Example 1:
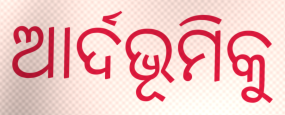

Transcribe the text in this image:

ଆର୍ଦଭୂମିକୁ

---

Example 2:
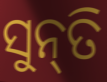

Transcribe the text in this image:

ସୁନ୍‌ତି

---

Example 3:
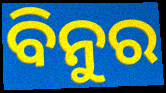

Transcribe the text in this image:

ବିନୁର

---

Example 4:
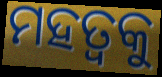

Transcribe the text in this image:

ମହତ୍ଵକୁ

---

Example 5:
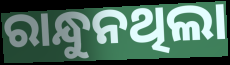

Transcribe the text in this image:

ରାନ୍ଧୁନଥିଲା